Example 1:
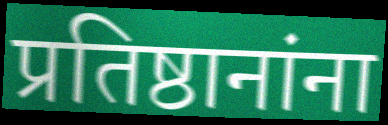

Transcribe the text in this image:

प्रतिष्ठानांना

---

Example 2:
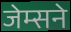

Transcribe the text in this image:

जेम्सने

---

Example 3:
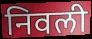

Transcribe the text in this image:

निवली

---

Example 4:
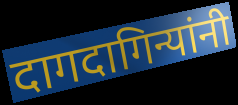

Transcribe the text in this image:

दागदागिन्यांनी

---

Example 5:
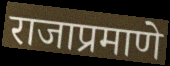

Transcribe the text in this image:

राजाप्रमाणे